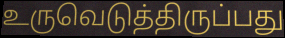
உருவெடுத்திருப்பது